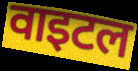
वाइटल